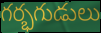
గర్భగుడులు